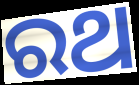
ରଥ